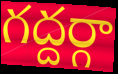
గద్దర్గా